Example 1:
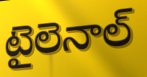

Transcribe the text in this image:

టైలెనాల్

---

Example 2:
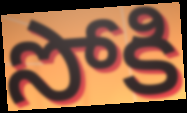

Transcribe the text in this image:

సోకి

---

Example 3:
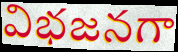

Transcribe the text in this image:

విభజనగా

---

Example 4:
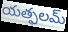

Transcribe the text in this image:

యత్ఫలమ్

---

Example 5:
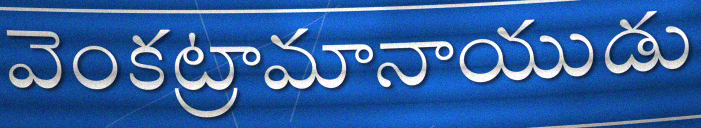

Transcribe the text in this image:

వెంకట్రామానాయుడు